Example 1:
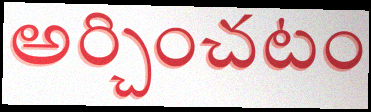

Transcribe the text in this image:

అర్చించటం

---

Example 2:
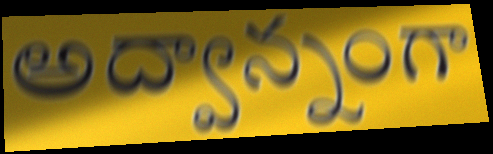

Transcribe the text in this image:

అద్వాన్నంగా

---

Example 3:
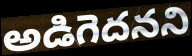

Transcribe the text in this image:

అడిగెదనని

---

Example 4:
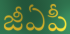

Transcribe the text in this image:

జీఏపీ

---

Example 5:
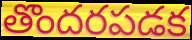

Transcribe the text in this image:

తొందరపడక